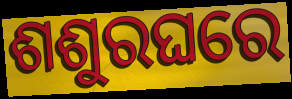
ଶଶୁରଘରେ